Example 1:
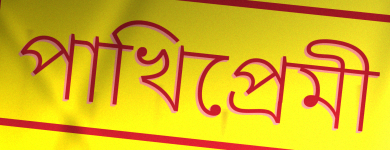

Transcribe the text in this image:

পাখিপ্রেমী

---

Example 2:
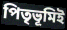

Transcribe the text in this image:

পিতৃভূমিই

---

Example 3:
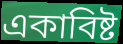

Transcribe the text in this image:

একাবিষ্ট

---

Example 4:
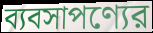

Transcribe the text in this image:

ব্যবসাপণ্যের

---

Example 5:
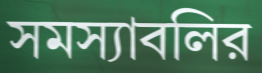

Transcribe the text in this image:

সমস্যাবলির